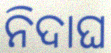
ନିଦାଘ